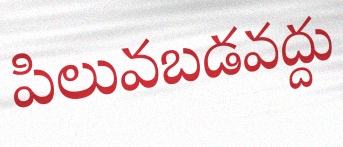
పిలువబడవద్దు